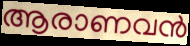
ആരാണവൻ